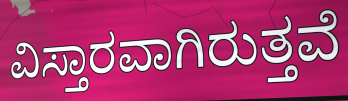
ವಿಸ್ತಾರವಾಗಿರುತ್ತವೆ